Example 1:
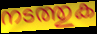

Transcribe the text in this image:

നടത്തുക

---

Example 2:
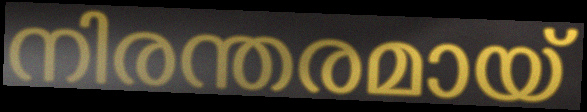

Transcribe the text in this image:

നിരന്തരമായ്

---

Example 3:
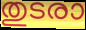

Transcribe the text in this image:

തുടരാ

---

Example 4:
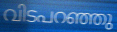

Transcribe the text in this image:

വിടപറഞ്ഞു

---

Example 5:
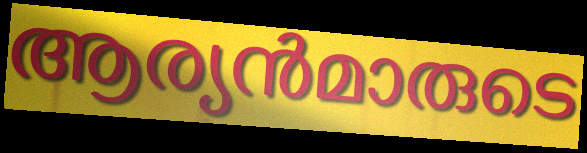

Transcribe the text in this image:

ആര്യൻമാരുടെ